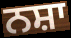
ਨਸ਼ਾ